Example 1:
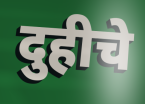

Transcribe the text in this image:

दुहीचे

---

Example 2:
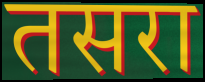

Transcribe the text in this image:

तसरा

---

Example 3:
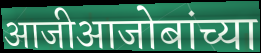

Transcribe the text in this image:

आजीआजोबांच्या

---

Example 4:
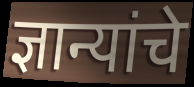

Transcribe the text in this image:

ज्ञान्यांचे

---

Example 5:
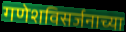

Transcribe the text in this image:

गणेशविसर्जनाच्या